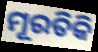
ମୂରତିକି